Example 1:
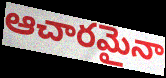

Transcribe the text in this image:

ఆచారమైనా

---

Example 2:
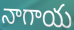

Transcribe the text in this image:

నాగాయ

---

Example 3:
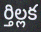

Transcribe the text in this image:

ర్తిల్లక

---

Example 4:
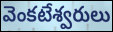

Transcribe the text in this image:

వెంకటేశ్వరులు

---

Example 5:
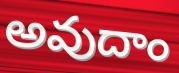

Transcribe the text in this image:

అవుదాం